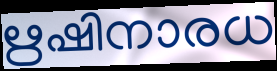
ഋഷിനാരധ